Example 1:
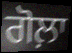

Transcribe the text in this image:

ਗੋਲ਼ਾ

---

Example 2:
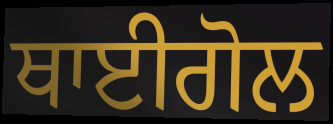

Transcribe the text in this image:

ਥਾਈਗੋਲ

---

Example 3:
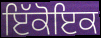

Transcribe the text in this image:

ਇੱਕੋਇਕ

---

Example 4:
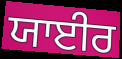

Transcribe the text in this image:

ਯਾਈਰ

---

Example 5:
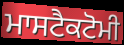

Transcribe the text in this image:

ਮਾਸਟੈਕਟੋਮੀ